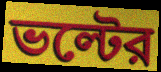
ভল্টের